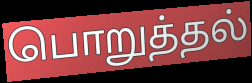
பொறுத்தல்